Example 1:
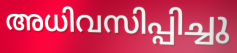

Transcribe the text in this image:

അധിവസിപ്പിച്ചു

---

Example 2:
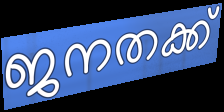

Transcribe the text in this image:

ജനതക്ക്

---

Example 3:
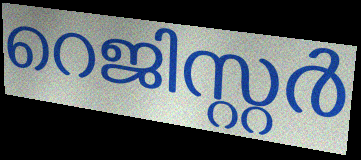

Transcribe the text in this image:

റെജിസ്റ്റർ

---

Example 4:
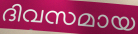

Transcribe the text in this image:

ദിവസമായ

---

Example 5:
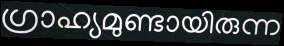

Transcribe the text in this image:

ഗ്രാഹ്യമുണ്ടായിരുന്ന